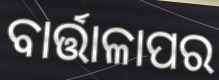
ବାର୍ତ୍ତାଳାପର